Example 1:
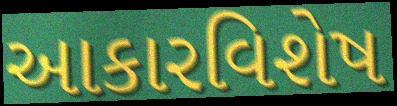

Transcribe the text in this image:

આકારવિશેષ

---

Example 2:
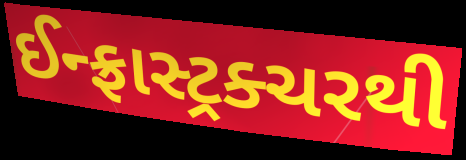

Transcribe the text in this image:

ઈન્ફ્રાસ્ટ્રક્ચરથી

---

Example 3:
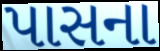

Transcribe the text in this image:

પાસના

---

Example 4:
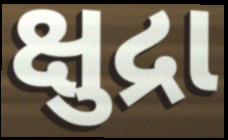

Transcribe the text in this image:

ક્ષુદ્રા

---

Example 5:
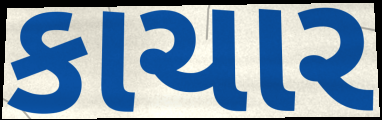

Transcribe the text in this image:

કાચાર